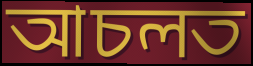
আচলত